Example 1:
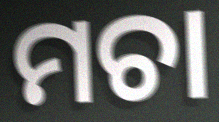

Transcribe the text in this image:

ମଚା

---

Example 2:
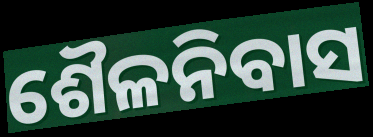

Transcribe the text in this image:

ଶୈଳନିବାସ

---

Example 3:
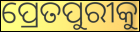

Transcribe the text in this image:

ପ୍ରେତପୁରୀକୁ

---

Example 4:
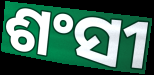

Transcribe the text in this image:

ଶଂସୀ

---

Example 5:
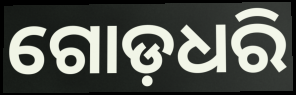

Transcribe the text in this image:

ଗୋଡ଼ଧରି